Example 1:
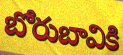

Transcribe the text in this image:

బోరుబావికి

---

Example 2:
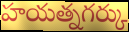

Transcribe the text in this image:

హయత్నగర్కు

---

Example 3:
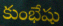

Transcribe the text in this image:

కుంభేషు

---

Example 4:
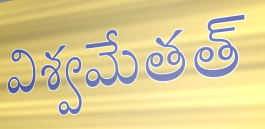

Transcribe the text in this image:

విశ్వమేతత్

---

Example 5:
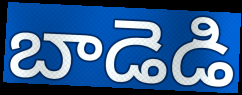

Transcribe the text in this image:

బాడెడి